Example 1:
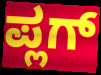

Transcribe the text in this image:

ಪ್ಲಗ್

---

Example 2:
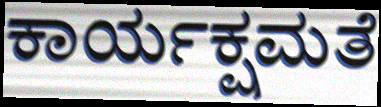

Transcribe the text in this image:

ಕಾರ್ಯಕ್ಷಮತೆ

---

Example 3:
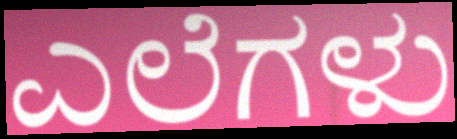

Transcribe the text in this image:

ಎಲೆಗಳು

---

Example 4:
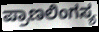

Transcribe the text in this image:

ಪ್ರಾಣಲಿಂಗಸ್ಯ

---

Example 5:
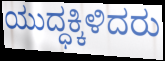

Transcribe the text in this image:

ಯುದ್ಧಕ್ಕಿಳಿದರು